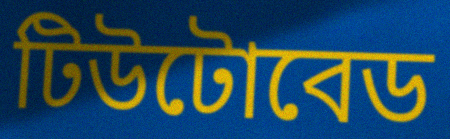
টিউটোবেড